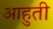
आहुती